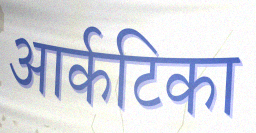
आर्कटिका